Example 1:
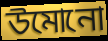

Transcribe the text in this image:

উমোনো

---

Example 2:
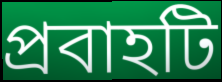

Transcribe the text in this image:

প্রবাহটি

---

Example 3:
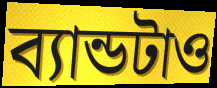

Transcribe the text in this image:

ব্যান্ডটাও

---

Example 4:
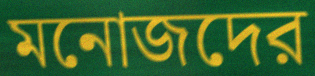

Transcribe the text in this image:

মনোজদের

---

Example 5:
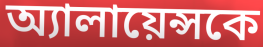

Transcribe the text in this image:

অ্যালায়েন্সকে